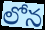
లోన